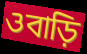
ওবাড়ি